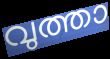
വുത്താ